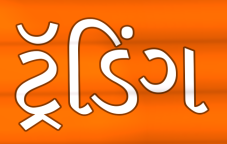
ટ્રૅડિંગ